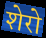
शेरो